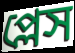
প্লেস